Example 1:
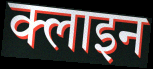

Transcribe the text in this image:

क्लाइन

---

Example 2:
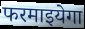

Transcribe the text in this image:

फरमाइयेगा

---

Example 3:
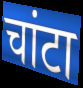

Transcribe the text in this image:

चांटा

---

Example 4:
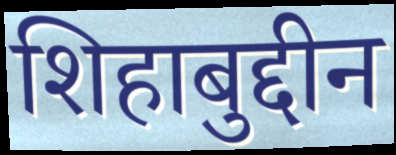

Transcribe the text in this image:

शिहाबुद्दीन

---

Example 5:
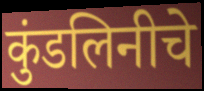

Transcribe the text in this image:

कुंडलिनीचे